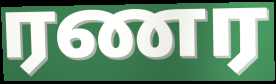
ரணர